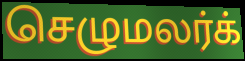
செழுமலர்க்